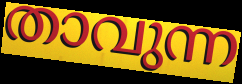
താവുന്ന